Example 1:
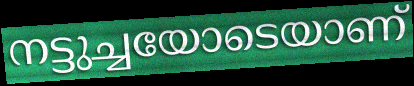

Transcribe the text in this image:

നട്ടുച്ചയോടെയാണ്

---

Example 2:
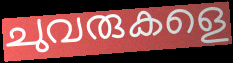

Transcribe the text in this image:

ചുവരുകളെ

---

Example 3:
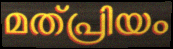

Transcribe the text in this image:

മത്പ്രിയം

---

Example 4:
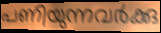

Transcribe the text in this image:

പണിയുന്നവർക്കു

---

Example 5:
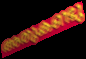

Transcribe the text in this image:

അതുകണ്ടു